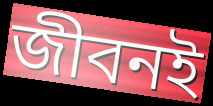
জীবনই